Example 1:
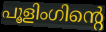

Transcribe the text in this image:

പൂളിംഗിന്റെ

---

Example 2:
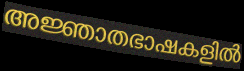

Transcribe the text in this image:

അജ്ഞാതഭാഷകളിൽ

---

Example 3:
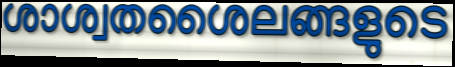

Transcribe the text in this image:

ശാശ്വതശൈലങ്ങളുടെ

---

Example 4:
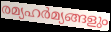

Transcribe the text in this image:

രമ്യഹർമ്യങ്ങളും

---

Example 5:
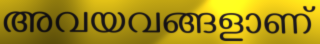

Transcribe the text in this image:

അവയവങ്ങളാണ്